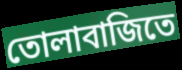
তোলাবাজিতে